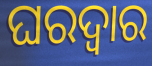
ଘରଦ୍ବାର